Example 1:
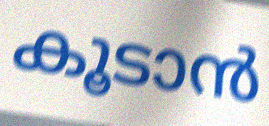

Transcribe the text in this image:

കൂടാൻ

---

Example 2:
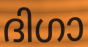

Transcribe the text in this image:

ദിഗാ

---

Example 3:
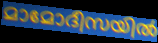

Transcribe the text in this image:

മാമോദീസയിൽ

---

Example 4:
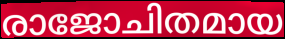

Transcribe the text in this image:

രാജോചിതമായ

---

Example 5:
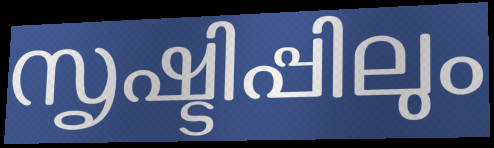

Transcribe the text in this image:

സൃഷ്ടിപ്പിലും